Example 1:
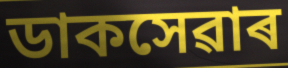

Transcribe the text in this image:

ডাকসেৱাৰ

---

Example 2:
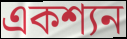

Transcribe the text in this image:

একশ্যন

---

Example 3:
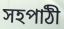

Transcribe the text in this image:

সহপাঠী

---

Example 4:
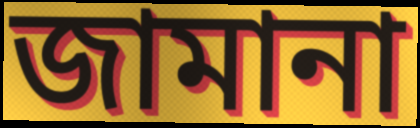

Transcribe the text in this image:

জামানা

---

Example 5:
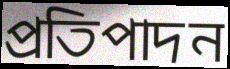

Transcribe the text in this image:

প্ৰতিপাদন